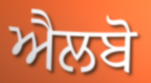
ਐਲਬੋ